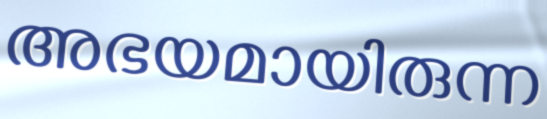
അഭയമായിരുന്ന